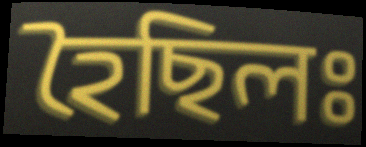
হৈছিলঃ